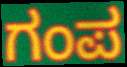
ಗಂಪ